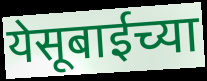
येसूबाईच्या